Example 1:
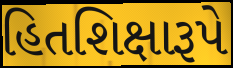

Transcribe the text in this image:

હિતશિક્ષારૂપે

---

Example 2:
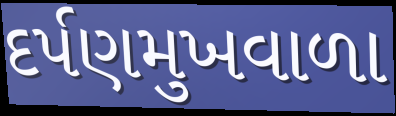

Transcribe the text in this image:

દર્પણમુખવાળા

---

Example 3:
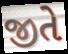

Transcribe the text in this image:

જીતે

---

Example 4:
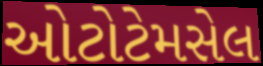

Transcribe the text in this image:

ઓટોટેમસેલ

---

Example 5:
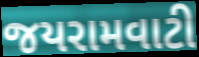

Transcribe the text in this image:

જયરામવાટી